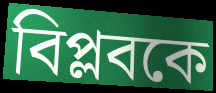
বিপ্লবকে